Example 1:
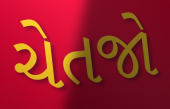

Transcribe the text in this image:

ચેતજો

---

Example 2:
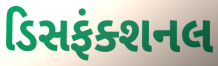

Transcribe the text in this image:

ડિસફંક્શનલ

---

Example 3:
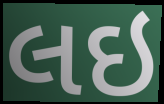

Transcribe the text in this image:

લઇ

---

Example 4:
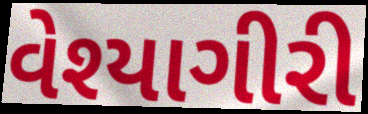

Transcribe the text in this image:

વેશ્યાગીરી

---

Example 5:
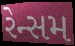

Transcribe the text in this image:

રેન્સમ